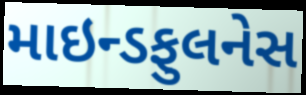
માઇન્ડફુલનેસ